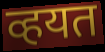
व्हयत